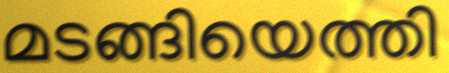
മടങ്ങിയെത്തി